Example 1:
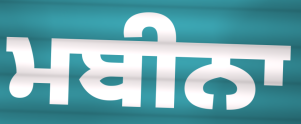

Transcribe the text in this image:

ਮਬੀਨਾ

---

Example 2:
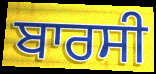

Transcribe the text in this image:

ਬਾਰਸੀ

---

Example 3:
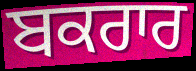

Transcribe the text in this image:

ਬਕਰਾਰ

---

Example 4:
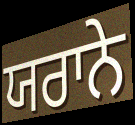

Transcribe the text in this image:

ਯਰਾਨੇ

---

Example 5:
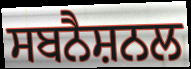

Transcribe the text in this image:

ਸਬਨੈਸ਼ਨਲ